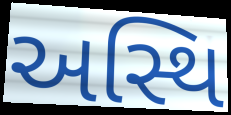
અસ્થિ